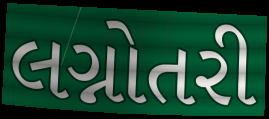
લગ્નોતરી